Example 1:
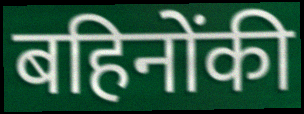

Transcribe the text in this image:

बहिनोंकी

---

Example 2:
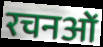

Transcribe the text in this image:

रचनओं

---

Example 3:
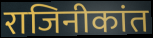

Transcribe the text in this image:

राजिनीकांत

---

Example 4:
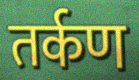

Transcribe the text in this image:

तर्कण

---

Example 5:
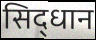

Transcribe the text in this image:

सिद्धान